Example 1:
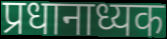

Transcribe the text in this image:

प्रधानाध्यक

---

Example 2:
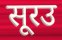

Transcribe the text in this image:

सूरउ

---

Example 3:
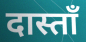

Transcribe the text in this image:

दास्ताँ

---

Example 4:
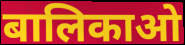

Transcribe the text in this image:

बालिकाओ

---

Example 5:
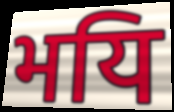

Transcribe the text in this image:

भयि